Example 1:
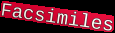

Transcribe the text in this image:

Facsimiles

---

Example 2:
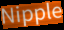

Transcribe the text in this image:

Nipple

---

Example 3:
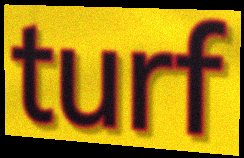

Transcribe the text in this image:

turf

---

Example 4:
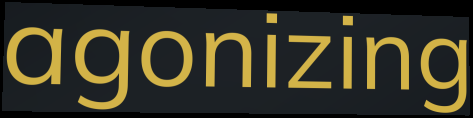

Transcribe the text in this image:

agonizing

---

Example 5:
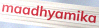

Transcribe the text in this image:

maadhyamika